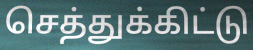
செத்துக்கிட்டு